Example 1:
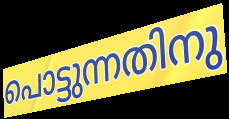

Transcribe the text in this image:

പൊട്ടുന്നതിനു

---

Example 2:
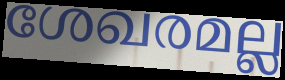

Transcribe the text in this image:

ശേഖരമല്ല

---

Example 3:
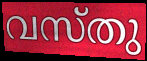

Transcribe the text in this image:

വസ്തു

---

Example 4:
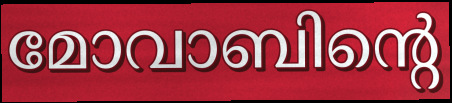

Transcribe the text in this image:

മോവാബിന്റെ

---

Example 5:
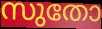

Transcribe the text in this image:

സുതോ